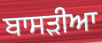
ਬਾਸੜੀਆ